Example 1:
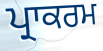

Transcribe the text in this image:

ਪ੍ਰਾਕਰਮ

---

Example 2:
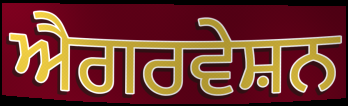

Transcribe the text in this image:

ਐਗਰਵੇਸ਼ਨ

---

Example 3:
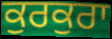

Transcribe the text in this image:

ਕੁਰਕੁਰਾ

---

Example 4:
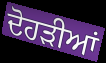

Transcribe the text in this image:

ਦੋਹੜੀਆਂ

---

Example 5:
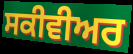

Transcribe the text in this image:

ਸਕੀਵੀਅਰ